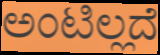
ಅಂಟಿಲ್ಲದೆ